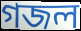
গজল